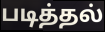
படித்தல்